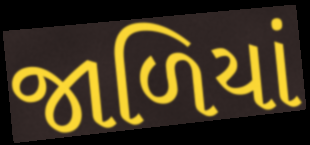
જાળિયાં